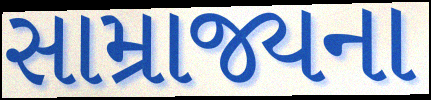
સામ્રાજ્યના